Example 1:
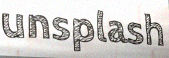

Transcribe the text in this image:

unsplash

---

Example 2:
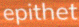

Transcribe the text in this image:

epithet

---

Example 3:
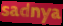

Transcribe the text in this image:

sadnya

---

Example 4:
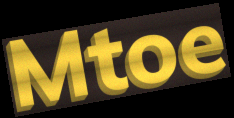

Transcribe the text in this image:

Mtoe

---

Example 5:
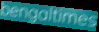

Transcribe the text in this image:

bengaltimes